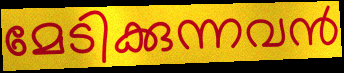
മേടിക്കുന്നവൻ